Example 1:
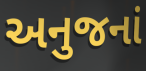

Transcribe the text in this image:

અનુજનાં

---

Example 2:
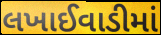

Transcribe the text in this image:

લખાઈવાડીમાં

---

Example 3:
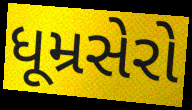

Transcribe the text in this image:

ધૂમ્રસેરો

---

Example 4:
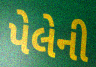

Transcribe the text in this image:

પેલેની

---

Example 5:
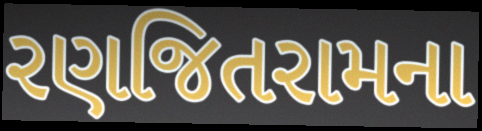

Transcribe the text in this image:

રણજિતરામના